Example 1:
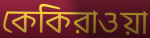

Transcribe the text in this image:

কেকিরাওয়া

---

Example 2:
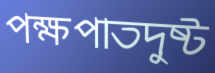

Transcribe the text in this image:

পক্ষপাতদুষ্ট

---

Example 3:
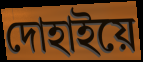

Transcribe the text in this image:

দোহাইয়ে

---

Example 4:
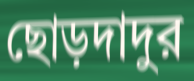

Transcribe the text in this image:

ছোড়দাদুর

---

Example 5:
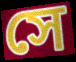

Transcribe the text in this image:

সে